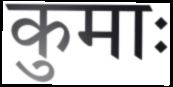
कुमाः